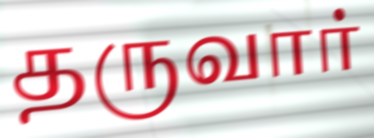
தருவார்